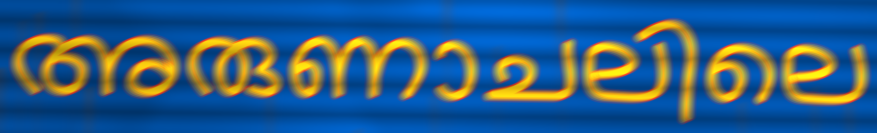
അരുണാചലിലെ